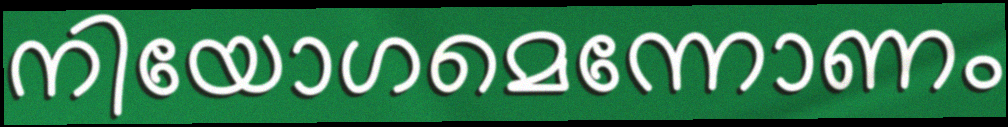
നിയോഗമെന്നോണം